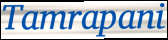
Tamrapani